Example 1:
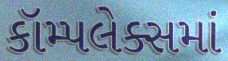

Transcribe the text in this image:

કૉમ્પલેક્સમાં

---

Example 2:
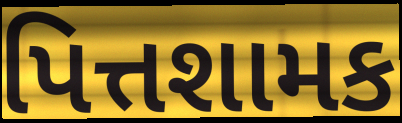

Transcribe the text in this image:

પિત્તશામક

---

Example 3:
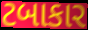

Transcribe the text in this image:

ટબાકાર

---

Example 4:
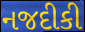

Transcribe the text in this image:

નજદીકી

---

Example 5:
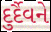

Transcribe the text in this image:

દુર્દૈવને